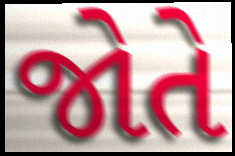
જોતે